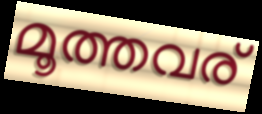
മൂത്തവര്